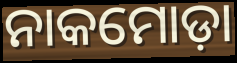
ନାକମୋଡ଼ା